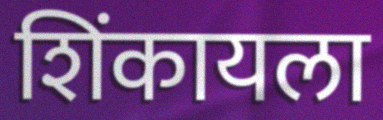
शिंकायला